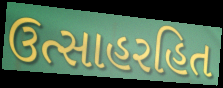
ઉત્સાહરહિત